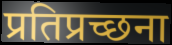
प्रतिप्रच्छना